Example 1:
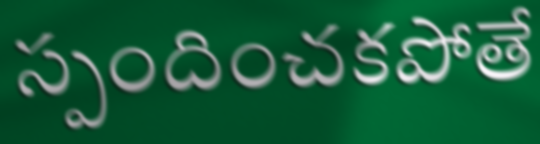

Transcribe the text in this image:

స్పందించకపోతే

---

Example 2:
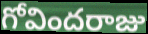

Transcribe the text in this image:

గోవిందరాజు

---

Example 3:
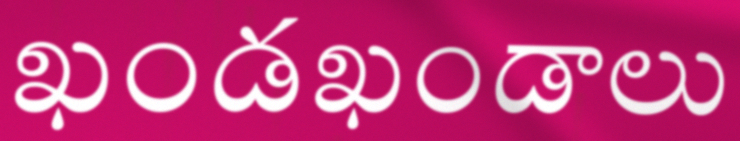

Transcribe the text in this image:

ఖండఖండాలు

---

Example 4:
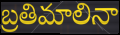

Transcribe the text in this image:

బ్రతిమాలినా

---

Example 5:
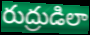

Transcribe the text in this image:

రుద్రుడిలా